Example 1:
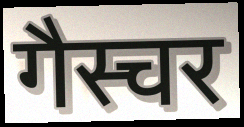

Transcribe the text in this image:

गैस्चर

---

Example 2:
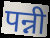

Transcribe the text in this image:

पन्नी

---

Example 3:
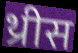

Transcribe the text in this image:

थ्रीस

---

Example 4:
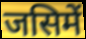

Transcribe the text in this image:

जसिमें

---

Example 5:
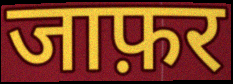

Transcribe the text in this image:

जाफ़र